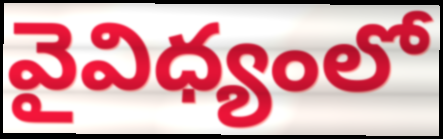
వైవిధ్యంలో